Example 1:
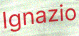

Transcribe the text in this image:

Ignazio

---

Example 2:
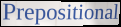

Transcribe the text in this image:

Prepositional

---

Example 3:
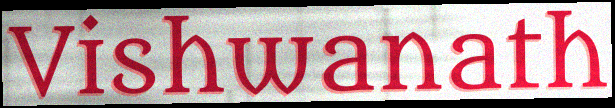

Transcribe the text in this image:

Vishwanath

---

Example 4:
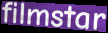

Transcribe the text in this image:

filmstar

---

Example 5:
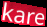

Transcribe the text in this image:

kare